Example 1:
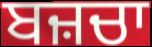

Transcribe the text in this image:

ਬਜ਼ਚਾ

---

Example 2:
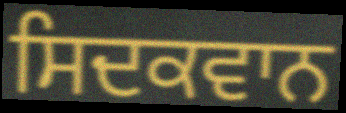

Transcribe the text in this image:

ਸਿਦਕਵਾਨ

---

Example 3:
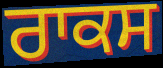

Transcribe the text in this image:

ਰਾਕਸ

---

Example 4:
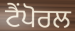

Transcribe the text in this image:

ਟੈਂਪੋਰਲ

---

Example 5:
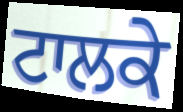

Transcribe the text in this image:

ਟਾਲਕੇ